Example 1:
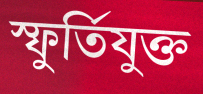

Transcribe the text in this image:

স্ফুর্তিযুক্ত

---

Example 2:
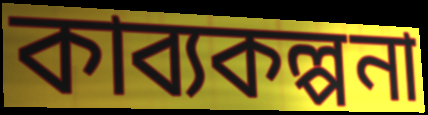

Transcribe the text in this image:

কাব্যকল্পনা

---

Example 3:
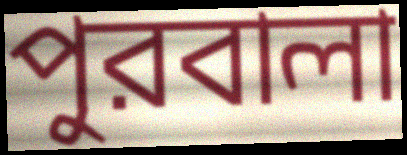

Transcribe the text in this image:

পুরবালা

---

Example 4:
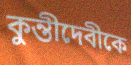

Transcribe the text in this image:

কুন্তীদেবীকে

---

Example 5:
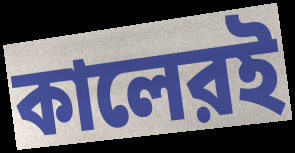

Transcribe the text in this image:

কালেরই